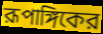
রূপাঙ্গিকের